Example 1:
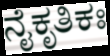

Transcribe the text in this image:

ನೈಕೃತಿಕಃ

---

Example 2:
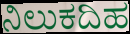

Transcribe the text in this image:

ನಿಲುಕದಿಹ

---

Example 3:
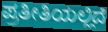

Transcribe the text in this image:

ಪ್ರತೀತಿಯಲ್ಲಿದೆ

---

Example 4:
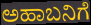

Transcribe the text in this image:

ಅಹಾಬನಿಗೆ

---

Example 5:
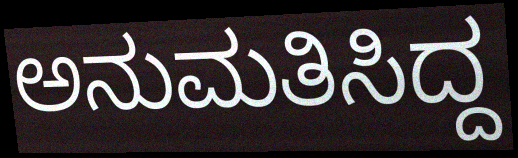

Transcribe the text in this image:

ಅನುಮತಿಸಿದ್ದ